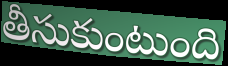
తీసుకుంటుంది